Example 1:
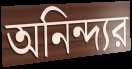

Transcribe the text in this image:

অনিন্দ্যর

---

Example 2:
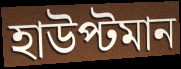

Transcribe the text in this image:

হাউপ্টমান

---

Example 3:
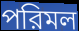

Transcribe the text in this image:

পরিমল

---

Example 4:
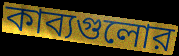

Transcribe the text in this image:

কাব্যগুলোর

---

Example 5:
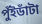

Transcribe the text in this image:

পুঁইডাঁটা